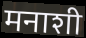
मनाशी